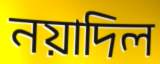
নয়াদিল